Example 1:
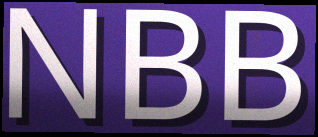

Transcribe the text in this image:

NBB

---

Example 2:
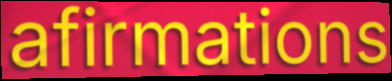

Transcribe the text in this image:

afirmations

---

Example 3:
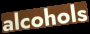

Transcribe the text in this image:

alcohols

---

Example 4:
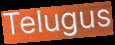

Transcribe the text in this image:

Telugus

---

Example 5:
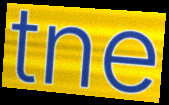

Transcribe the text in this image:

tne